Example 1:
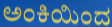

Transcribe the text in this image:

ಅಂಕಿಯಿಂದ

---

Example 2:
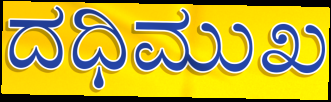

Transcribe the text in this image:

ದಧಿಮುಖ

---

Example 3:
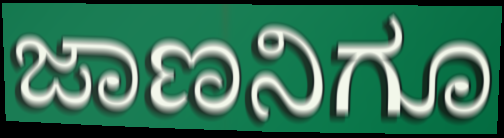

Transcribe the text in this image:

ಜಾಣನಿಗೂ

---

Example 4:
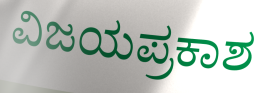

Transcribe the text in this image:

ವಿಜಯಪ್ರಕಾಶ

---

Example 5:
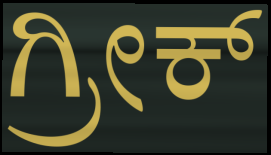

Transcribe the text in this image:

ಗ್ರೀಕ್